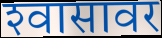
श्वासावर